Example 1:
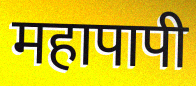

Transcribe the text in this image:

महापापी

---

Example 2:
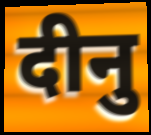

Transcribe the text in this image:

दीनु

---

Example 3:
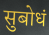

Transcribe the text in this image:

सुबोधं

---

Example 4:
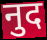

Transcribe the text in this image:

नुद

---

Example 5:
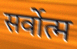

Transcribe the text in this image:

सर्वोत्म